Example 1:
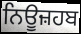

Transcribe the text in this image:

ਨਿਊਜ਼ਹਬ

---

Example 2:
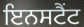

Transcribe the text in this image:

ਇਨਸਟੈਂਟ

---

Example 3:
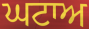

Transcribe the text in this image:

ਘਟਾਅ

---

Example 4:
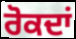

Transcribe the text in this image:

ਰੋਕਦਾਂ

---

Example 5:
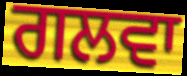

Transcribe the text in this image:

ਗਲਵਾ